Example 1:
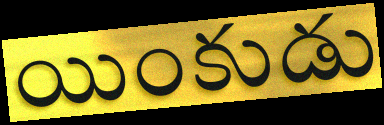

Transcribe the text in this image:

యింకుడు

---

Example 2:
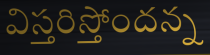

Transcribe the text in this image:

విస్తరిస్తోందన్న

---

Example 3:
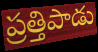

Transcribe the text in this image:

ప్రత్తిపాడు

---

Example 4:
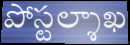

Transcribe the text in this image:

పోస్టల్శాఖ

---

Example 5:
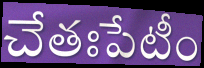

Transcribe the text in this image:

చేతఃపేటీం